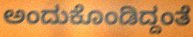
ಅಂದುಕೊಂಡಿದ್ದಂತೆ